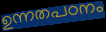
ഉന്നതപഠനം